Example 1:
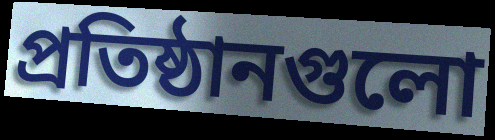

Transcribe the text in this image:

প্রতিষ্ঠানগুলো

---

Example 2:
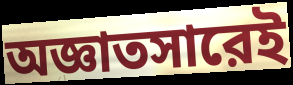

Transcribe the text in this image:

অজ্ঞাতসারেই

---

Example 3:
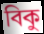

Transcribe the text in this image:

বিকু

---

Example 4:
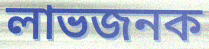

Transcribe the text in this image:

লাভজনক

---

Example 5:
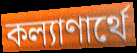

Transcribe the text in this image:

কল্যাণার্থে